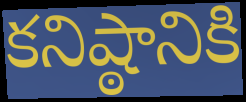
కనిష్ఠానికి